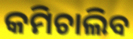
କମିଚାଲିବ